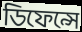
ডিফেন্সে